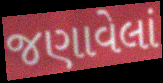
જણાવેલાં